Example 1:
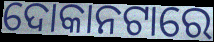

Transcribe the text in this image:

ଦୋକାନଟାରେ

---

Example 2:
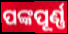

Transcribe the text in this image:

ପଙ୍କପୂର୍ଣ୍ଣ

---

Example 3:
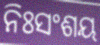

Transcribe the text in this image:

ନିଃସଂଶୟ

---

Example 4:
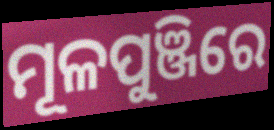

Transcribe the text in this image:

ମୂଳପୁଞ୍ଜିରେ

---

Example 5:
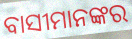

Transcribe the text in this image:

ବାସୀମାନଙ୍କର